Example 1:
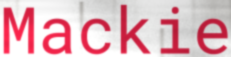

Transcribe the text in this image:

Mackie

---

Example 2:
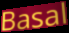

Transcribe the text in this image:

Basal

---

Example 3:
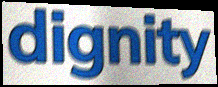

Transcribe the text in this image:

dignity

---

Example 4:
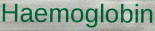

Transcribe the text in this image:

Haemoglobin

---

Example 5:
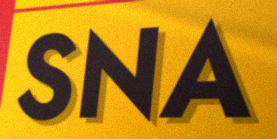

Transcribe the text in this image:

SNA